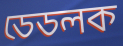
ডেডলক